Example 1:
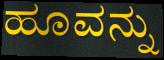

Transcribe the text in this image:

ಹೂವನ್ನು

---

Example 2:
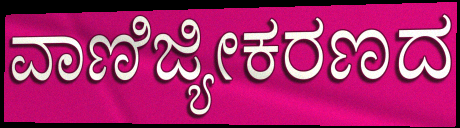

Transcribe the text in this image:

ವಾಣಿಜ್ಯೀಕರಣದ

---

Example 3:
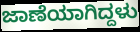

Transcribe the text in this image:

ಜಾಣೆಯಾಗಿದ್ದಳು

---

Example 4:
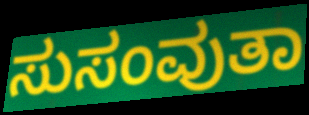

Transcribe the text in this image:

ಸುಸಂವುತಾ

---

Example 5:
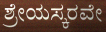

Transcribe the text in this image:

ಶ್ರೇಯಸ್ಕರವೇ